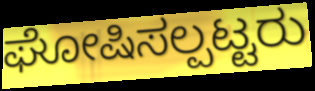
ಘೋಷಿಸಲ್ಪಟ್ಟರು